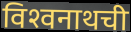
विश्वनाथची